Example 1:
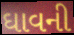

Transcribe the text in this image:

ઘાવની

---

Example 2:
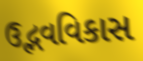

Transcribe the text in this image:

ઉદ્ભવવિકાસ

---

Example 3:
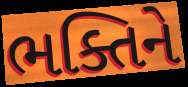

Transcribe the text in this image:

ભક્તિને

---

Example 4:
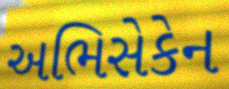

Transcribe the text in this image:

અભિસેકેન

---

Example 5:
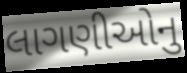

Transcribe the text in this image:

લાગણીઓનુ